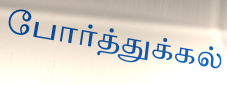
போர்த்துக்கல்